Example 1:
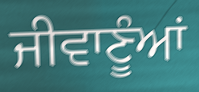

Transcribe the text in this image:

ਜੀਵਾਣੂੰਆਂ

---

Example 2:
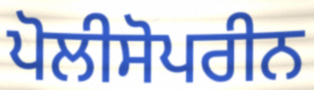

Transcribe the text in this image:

ਪੋਲੀਸੋਪਰੀਨ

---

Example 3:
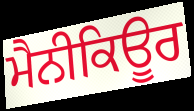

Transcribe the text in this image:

ਮੈਨੀਕਿਊਰ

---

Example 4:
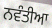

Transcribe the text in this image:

ਨਵੰਤੀਆ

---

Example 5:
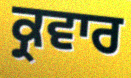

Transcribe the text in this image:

ਕ੍ਰਵਾਰ